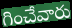
గించేవారు